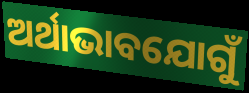
ଅର୍ଥାଭାବଯୋଗୁଁ